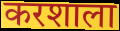
करशाला